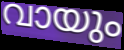
വായും